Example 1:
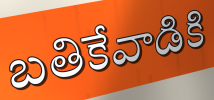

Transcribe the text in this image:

బతికేవాడికి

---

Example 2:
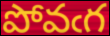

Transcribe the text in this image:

పోవఁగ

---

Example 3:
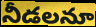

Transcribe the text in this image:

నీడలనూ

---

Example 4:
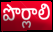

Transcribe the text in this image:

పొర్లాలి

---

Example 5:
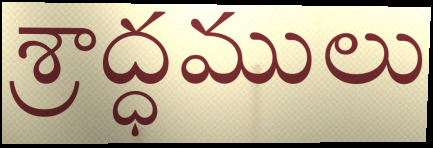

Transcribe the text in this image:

శ్రాద్ధములు